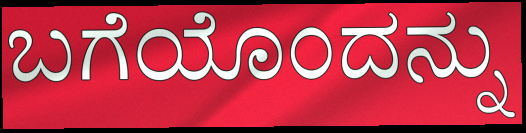
ಬಗೆಯೊಂದನ್ನು